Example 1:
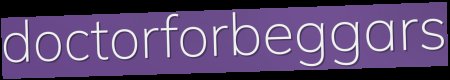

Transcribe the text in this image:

doctorforbeggars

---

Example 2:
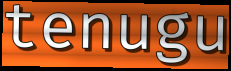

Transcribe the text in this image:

tenugu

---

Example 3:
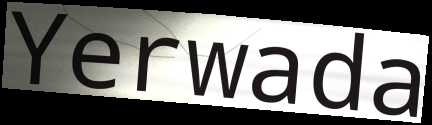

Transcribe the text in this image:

Yerwada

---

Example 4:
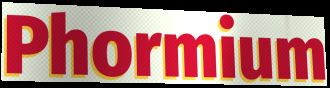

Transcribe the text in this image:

Phormium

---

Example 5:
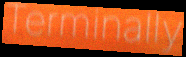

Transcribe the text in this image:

Terminally